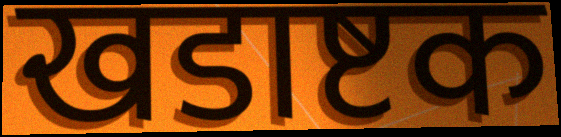
खडाष्टक